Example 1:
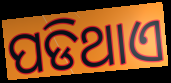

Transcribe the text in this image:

ପଡିଥାଏ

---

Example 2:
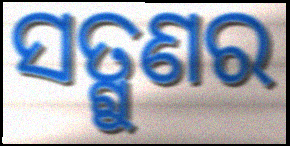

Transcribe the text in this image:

ସତ୍ଗୁଣର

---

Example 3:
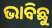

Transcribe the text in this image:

ଭାବିଛୁ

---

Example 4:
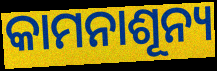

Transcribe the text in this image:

କାମନାଶୂନ୍ୟ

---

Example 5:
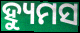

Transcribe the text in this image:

ହ୍ୟୁମସ